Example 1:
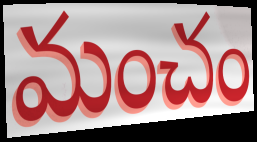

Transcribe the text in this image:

మంచం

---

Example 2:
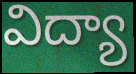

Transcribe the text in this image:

విద్యా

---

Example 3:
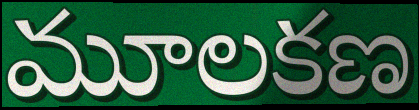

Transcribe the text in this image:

మూలకణ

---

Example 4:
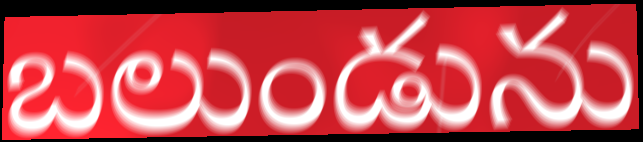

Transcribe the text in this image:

బలుండును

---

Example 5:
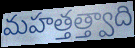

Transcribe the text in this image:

మహత్తత్త్వాది